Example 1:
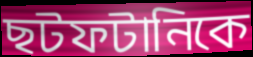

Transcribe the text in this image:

ছটফটানিকে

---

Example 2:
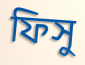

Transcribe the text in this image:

ফিসু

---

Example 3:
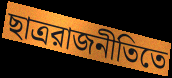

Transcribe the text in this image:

ছাত্ররাজনীতিতে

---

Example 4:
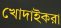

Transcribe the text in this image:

খোদাইকরা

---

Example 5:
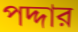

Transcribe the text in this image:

পদ্দার